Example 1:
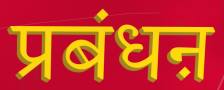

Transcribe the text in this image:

प्रबंधऩ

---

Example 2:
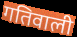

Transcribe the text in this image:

गतिवाली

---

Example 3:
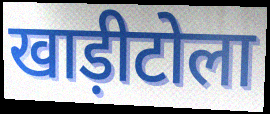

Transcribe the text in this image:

खाड़ीटोला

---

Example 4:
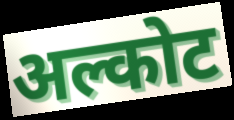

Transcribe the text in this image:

अल्कोट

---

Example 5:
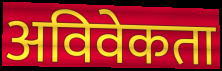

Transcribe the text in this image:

अविवेकता